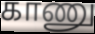
காணு